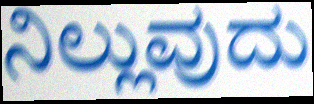
ನಿಲ್ಲುವುದು